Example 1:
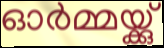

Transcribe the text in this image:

ഓർമ്മയ്ക്കു്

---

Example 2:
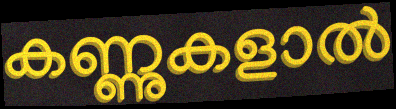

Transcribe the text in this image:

കണ്ണുകളാൽ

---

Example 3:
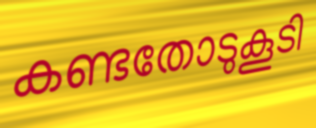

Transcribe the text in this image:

കണ്ടതോടുകൂടി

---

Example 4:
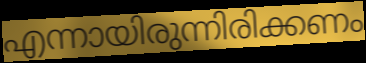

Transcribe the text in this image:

എന്നായിരുന്നിരിക്കണം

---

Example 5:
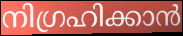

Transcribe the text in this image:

നിഗ്രഹിക്കാൻ